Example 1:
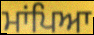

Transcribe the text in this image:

ਮਾਂਪਿਆ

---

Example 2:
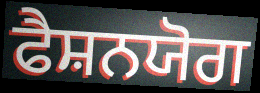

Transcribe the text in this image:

ਫੈਸ਼ਨਯੋਗ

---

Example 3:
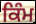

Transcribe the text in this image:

ਕਿੰਮ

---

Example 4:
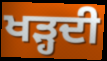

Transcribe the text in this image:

ਖੜ੍ਹਦੀ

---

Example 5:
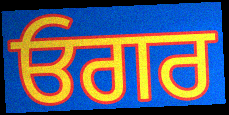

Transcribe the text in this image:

ਓਗਰ